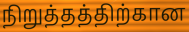
நிறுத்தத்திற்கான